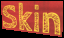
Skin